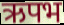
ऋपभ